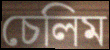
চেলিম